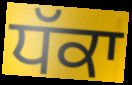
ਧੱਕਾ